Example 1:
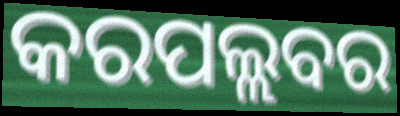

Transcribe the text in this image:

କରପଲ୍ଲବର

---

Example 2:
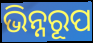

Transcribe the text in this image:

ଭିନ୍ନରୂପ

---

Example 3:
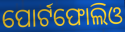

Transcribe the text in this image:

ପୋର୍ଟଫୋଲିଓ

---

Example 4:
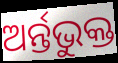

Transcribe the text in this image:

ଅର୍ନ୍ତଭୁକ୍ତ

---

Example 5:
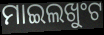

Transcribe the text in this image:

ମାଇଲଖୁଂଟ